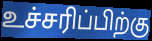
உச்சரிப்பிற்கு